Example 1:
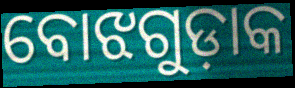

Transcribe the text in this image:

ବୋଝଗୁଡ଼ାକ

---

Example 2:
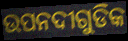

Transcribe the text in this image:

ଉପନଦୀଗୁଡିକ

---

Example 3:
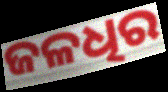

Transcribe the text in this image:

ଜଳଧିର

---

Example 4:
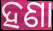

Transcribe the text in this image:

ହଣା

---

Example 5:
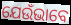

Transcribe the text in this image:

ଯେଉଁଭାବେ